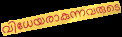
വിധേയരാകുന്നവരുടെ